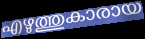
എഴുത്തുകാരായ